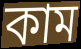
কাম